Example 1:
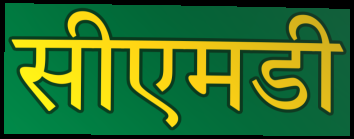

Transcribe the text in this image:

सीएमडी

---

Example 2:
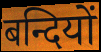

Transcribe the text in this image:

बन्दियों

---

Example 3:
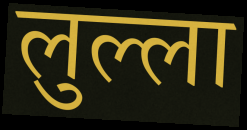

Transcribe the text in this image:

लुल्ला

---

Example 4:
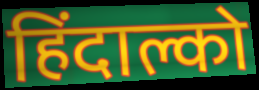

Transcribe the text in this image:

हिंदाल्को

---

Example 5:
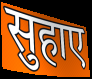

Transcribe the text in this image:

सुहाए